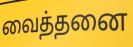
வைத்தனை